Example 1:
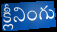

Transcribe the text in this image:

క్లీనింగు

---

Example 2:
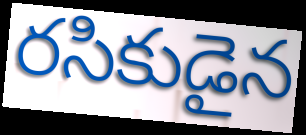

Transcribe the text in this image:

రసికుడైన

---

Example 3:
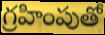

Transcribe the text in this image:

గ్రహింపుతో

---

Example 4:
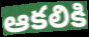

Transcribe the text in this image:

ఆకలికి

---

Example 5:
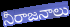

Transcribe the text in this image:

నీరాజనాలు